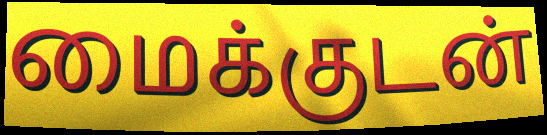
மைக்குடன்